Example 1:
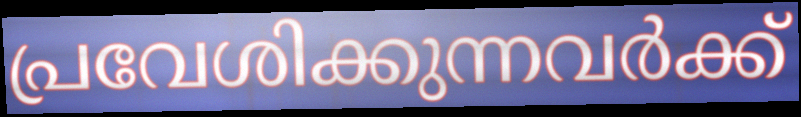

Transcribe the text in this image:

പ്രവേശിക്കുന്നവർക്ക്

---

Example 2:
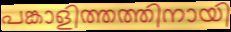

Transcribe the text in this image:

പങ്കാളിത്തത്തിനായി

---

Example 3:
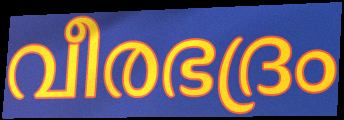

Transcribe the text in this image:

വീരഭദ്രം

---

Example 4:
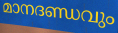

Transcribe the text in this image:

മാനദണ്ഡവും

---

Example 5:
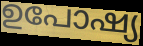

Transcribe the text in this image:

ഉപോഷ്യ